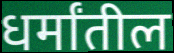
धर्मांतील